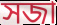
সজা